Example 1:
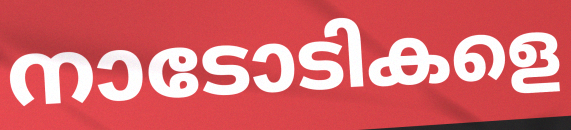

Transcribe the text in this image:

നാടോടികളെ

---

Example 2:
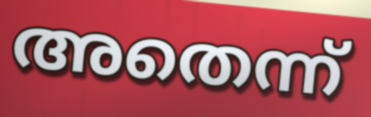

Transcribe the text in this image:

അതെന്ന്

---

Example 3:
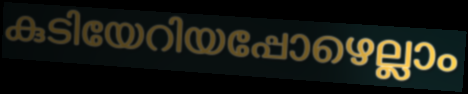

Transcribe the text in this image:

കുടിയേറിയപ്പോഴെല്ലാം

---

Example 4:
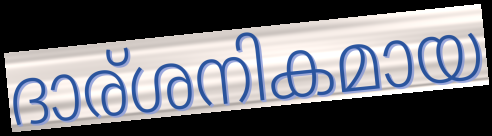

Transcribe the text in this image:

ദാര്ശനികമായ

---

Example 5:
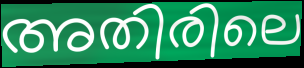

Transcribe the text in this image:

അതിരിലെ